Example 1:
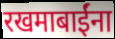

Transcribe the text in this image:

रखमाबाईंना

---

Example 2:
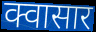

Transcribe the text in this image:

क्वासार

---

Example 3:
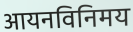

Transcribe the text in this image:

आयनविनिमय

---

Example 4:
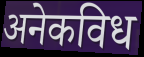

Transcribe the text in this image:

अनेकविध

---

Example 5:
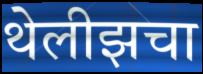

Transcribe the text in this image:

थेलीझचा